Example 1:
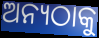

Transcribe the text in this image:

ଅନ୍ୟଠାକୁ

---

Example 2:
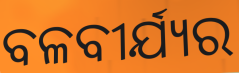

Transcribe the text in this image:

ବଳବୀର୍ଯ୍ୟର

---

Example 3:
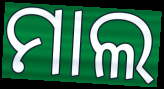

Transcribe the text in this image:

ମାଲ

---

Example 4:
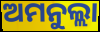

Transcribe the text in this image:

ଅମନୁଲ୍ଲା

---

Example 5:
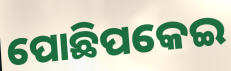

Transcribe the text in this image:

ପୋଛିପକେଇ